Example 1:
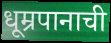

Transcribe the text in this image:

धूम्रपानाची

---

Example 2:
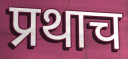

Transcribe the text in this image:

प्रथाच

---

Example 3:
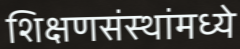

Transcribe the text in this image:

शिक्षणसंस्थांमध्ये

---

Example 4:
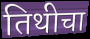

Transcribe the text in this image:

तिथीचा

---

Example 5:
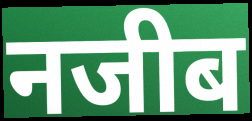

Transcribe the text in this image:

नजीब